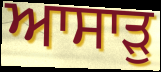
ਆਸਾੜੁ